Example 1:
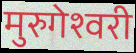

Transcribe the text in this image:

मुरुगेश्वरी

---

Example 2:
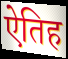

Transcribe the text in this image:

ऐतिह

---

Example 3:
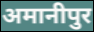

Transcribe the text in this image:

अमानीपुर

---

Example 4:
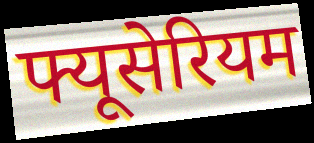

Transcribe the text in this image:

फ्यूसेरियम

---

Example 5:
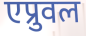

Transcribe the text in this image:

एप्रुवल